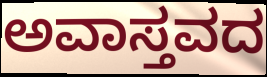
ಅವಾಸ್ತವದ